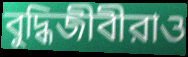
বুদ্ধিজীবীরাও